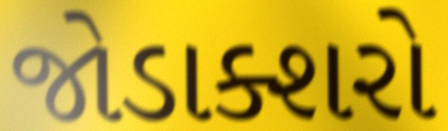
જોડાક્શરો